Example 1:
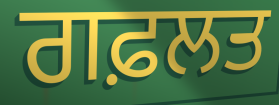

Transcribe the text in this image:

ਗਫ਼ਲਤ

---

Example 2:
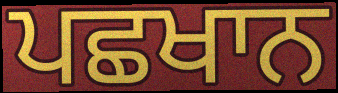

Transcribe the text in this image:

ਪਛਖਾਨ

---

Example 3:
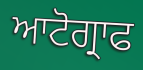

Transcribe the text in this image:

ਆਟੋਗ੍ਰਾਫ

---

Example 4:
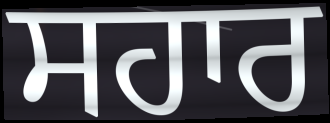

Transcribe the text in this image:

ਸਹਾਰ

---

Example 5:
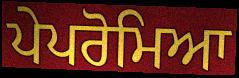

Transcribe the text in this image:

ਪੇਪਰੋਮਿਆ